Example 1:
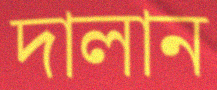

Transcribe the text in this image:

দালান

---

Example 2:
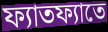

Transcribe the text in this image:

ফ্যাতফ্যাতে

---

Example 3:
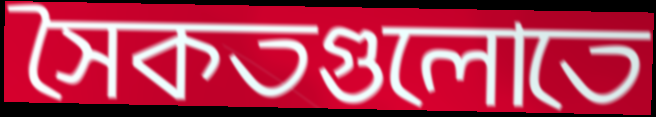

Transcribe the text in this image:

সৈকতগুলোতে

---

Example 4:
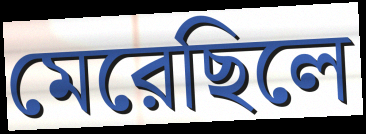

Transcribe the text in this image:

মেরেছিলে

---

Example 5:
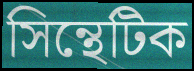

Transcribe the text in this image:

সিন্থেটিক